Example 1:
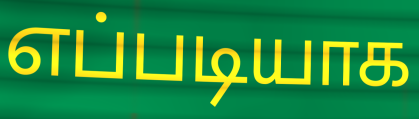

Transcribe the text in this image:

எப்படியாக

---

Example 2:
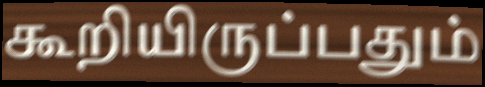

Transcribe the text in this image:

கூறியிருப்பதும்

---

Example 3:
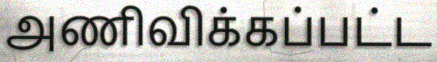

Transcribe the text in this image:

அணிவிக்கப்பட்ட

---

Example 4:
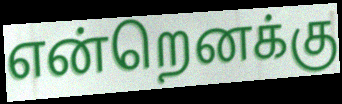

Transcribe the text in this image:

என்றெனக்கு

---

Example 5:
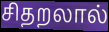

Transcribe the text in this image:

சிதறலால்